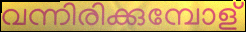
വന്നിരിക്കുമ്പോള്